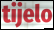
tijelo